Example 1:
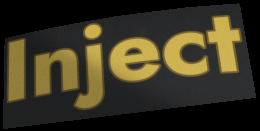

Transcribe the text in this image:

Inject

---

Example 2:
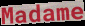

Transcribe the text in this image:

Madame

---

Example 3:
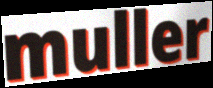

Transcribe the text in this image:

muller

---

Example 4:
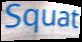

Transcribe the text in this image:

Squat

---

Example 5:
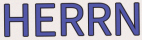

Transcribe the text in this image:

HERRN